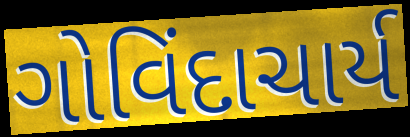
ગોવિંદાચાર્ય